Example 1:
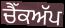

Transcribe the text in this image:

ਚੈੱਕਅੱਪ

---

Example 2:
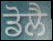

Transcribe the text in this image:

ਡੋਲੈ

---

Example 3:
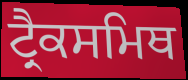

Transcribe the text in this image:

ਟ੍ਰੈਕਸਮਿਥ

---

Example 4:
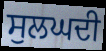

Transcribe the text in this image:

ਸੁਲਘਦੀ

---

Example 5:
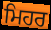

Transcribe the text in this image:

ਮਿਹਰ